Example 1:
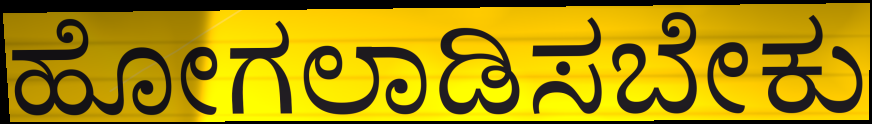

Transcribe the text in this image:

ಹೋಗಲಾಡಿಸಬೇಕು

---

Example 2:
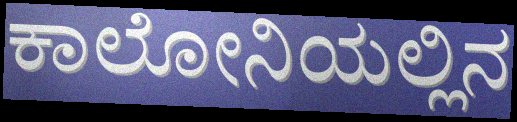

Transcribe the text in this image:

ಕಾಲೋನಿಯಲ್ಲಿನ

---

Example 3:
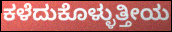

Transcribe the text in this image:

ಕಳೆದುಕೊಳ್ಳುತ್ತೀಯ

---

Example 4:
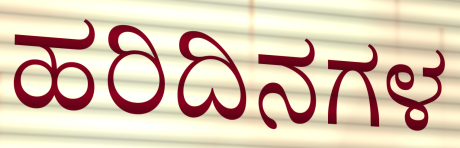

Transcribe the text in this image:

ಹರಿದಿನಗಳ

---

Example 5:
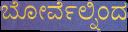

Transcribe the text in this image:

ಬೋರ್ವೆಲ್ನಿಂದ